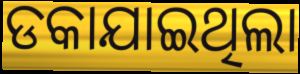
ଡକାଯାଇଥିଲା